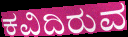
ಕವಿದಿರುವ